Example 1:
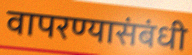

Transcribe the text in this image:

वापरण्यासंबंधी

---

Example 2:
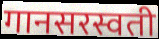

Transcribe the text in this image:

गानसरस्वती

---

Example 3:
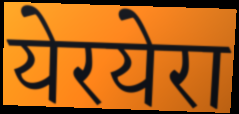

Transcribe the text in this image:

येरयेरा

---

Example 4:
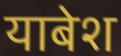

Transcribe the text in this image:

याबेश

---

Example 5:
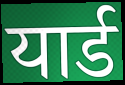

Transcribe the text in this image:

यार्ड